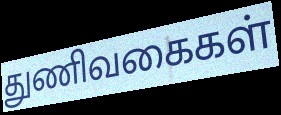
துணிவகைகள்